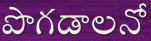
పొగడాలనో